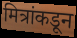
मित्रांकडून